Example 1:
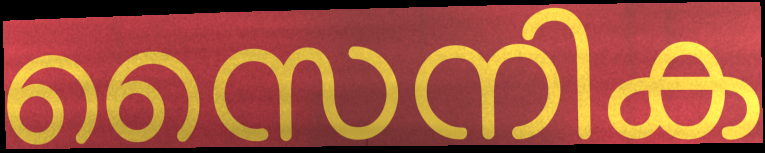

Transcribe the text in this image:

സൈനിക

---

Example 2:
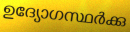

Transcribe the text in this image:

ഉദ്യോഗസ്ഥർക്കു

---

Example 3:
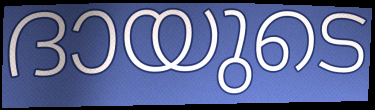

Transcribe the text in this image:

ദായുടെ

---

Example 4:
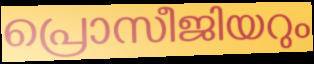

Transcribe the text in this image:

പ്രൊസീജിയറും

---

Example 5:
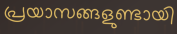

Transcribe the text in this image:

പ്രയാസങ്ങളുണ്ടായി